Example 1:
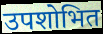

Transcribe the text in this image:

उपशोभित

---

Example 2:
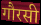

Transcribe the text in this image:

गौरसी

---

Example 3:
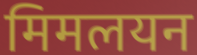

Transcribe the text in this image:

मिमलयन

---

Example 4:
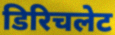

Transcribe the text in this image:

डिरिचलेट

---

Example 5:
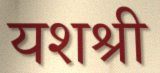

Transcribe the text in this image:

यशश्री